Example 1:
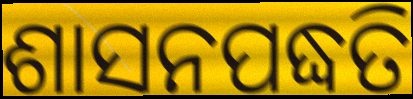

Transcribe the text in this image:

ଶାସନପଦ୍ଧତି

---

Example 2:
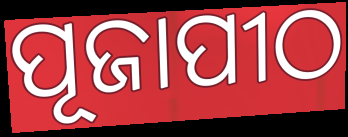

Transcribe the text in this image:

ପୂଜାପୀଠ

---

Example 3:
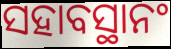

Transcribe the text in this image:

ସହାବସ୍ଥାନଂ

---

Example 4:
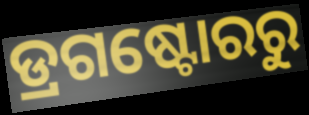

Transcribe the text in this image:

ଡ୍ରଗଷ୍ଟୋରରୁ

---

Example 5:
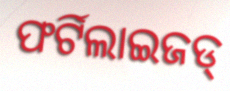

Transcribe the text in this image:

ଫର୍ଟିଲାଇଜଡ୍